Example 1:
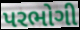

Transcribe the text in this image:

પરભોગી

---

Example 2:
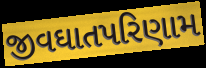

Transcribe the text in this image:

જીવઘાતપરિણામ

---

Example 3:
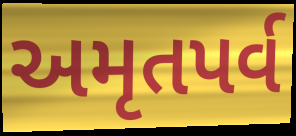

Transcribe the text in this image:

અમૃતપર્વ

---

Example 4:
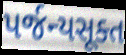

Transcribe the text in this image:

પર્જન્યસૂક્ત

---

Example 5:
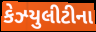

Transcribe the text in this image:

કેઝ્યુલીટીના